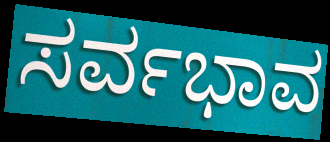
ಸರ್ವಭಾವ